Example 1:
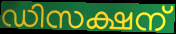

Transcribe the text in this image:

ഡിസക്ഷന്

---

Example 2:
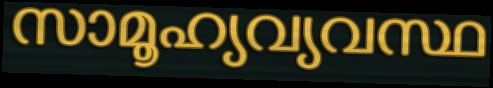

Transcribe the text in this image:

സാമൂഹ്യവ്യവസ്ഥ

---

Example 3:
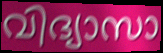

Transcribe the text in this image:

വിദ്യാസാ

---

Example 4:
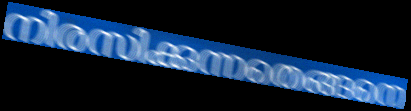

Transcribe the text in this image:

നിരസിക്കുന്നതെങ്ങനെ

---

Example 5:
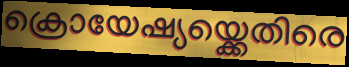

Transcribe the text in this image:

ക്രൊയേഷ്യയ്ക്കെതിരെ